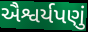
ઐશ્વર્યપણું